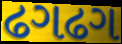
ઢગઢગ